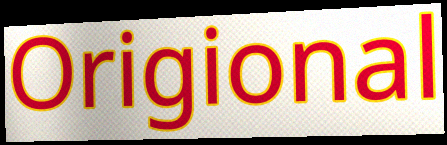
Origional